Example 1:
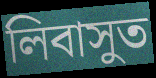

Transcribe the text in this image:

লিবাসুত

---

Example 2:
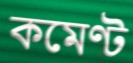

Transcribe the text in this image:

কমেণ্ট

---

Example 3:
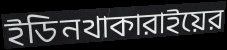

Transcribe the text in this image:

ইডিনথাকারাইয়ের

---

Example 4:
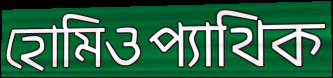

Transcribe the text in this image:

হোমিওপ্যাথিক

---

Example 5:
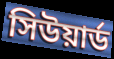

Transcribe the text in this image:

সিউয়ার্ড